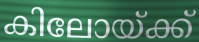
കിലോയ്ക്ക്